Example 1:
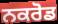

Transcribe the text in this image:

ਨਕਰੋਡ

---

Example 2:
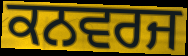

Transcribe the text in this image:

ਕਨਵਰਜ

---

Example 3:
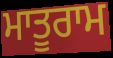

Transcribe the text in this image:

ਮਾਤੂਰਾਮ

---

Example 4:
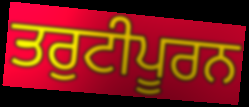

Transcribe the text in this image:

ਤਰੁਟੀਪੂਰਨ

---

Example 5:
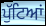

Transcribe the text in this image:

ਪੁੱਟਿਆਂ